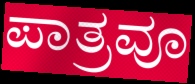
ಪಾತ್ರವೂ